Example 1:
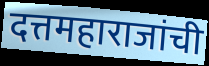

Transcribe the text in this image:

दत्तमहाराजांची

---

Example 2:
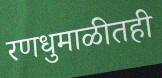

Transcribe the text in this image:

रणधुमाळीतही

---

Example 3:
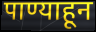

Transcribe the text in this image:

पाण्याहून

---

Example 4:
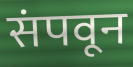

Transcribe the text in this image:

संपवून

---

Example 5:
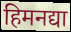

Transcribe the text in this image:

हिमनद्या